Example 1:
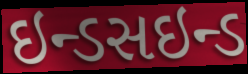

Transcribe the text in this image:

ઇન્ડસઇન્ડ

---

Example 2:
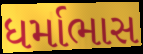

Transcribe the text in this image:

ધર્માભાસ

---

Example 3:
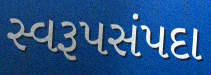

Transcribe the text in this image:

સ્વરૂપસંપદા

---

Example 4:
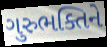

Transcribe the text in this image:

ગુરુભક્તિને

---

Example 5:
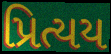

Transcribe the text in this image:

પ્રિત્યય